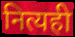
नित्यही